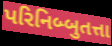
પરિનિબ્બુતત્તા